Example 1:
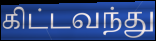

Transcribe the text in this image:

கிட்டவந்து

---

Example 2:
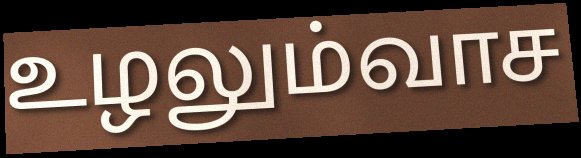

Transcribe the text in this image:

உழலும்வாச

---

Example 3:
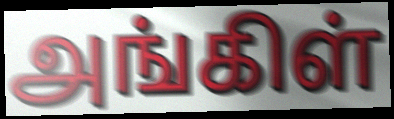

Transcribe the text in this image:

அங்கிள்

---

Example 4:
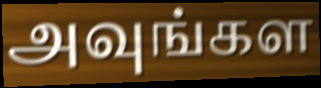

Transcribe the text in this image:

அவுங்கள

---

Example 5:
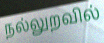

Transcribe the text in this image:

நல்லுறவில்